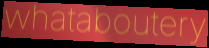
whataboutery